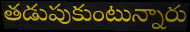
తడుపుకుంటున్నారు